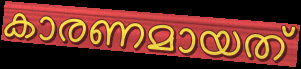
കാരണമായത്